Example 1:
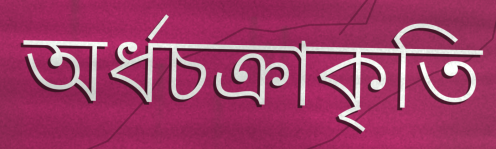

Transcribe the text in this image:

অর্ধচক্রাকৃতি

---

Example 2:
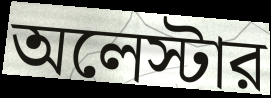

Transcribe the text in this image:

অলেস্টার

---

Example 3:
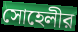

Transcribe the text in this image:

সোহেলীর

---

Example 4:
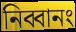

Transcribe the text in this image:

নিব্বানং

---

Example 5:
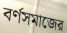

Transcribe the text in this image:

বর্ণসমাজের